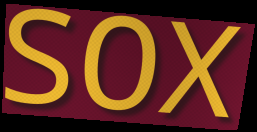
SOX